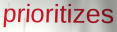
prioritizes